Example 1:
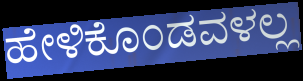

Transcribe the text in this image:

ಹೇಳಿಕೊಂಡವಳಲ್ಲ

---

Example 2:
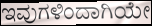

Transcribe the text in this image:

ಇವುಗಳಿಂದಾಗಿಯೇ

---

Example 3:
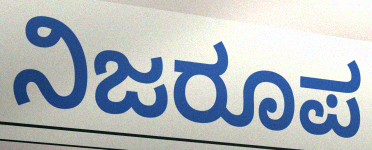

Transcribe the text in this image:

ನಿಜರೂಪ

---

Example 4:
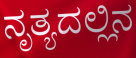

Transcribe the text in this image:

ನೃತ್ಯದಲ್ಲಿನ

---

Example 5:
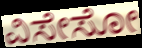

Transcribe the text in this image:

ವಿಸೇಸೋ